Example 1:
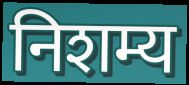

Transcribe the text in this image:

निशम्य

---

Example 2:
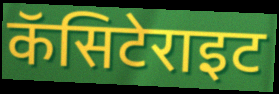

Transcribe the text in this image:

कॅसिटेराइट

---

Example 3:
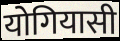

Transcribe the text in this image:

योगियासी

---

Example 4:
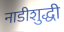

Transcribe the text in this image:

नाडीशुद्धी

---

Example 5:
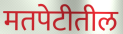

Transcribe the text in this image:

मतपेटीतील